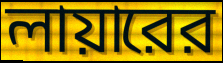
লায়ারের